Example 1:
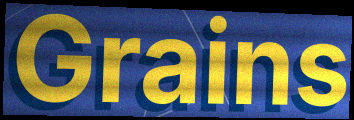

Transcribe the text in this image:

Grains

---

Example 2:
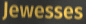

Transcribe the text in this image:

Jewesses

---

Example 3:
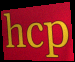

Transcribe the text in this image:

hcp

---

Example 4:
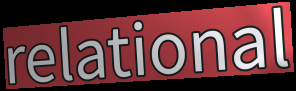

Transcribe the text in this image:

relational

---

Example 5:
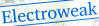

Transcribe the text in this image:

Electroweak